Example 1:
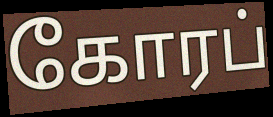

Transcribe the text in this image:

கோரப்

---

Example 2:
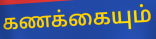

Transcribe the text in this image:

கணக்கையும்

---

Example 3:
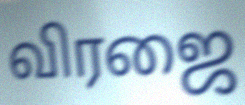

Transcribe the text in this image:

விரஜை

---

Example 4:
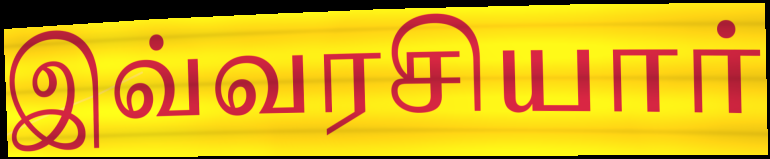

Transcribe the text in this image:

இவ்வரசியார்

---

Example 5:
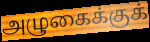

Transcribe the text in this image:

அழுகைக்குக்